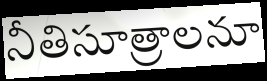
నీతిసూత్రాలనూ